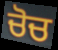
ਚੋਚ